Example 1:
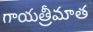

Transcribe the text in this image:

గాయత్రీమాత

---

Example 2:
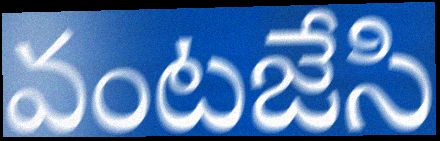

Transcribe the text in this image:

వంటజేసి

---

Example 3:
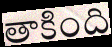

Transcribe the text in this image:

తాకింది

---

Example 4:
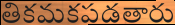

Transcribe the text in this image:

తికమకపడతారు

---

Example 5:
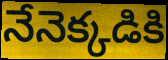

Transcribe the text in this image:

నేనెక్కడికి